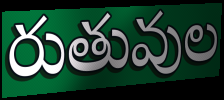
రుతువుల